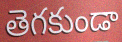
తెగకుండా